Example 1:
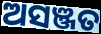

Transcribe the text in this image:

ଅସଞ୍ଜତ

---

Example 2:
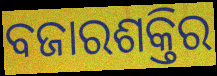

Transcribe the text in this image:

ବଜାରଶକ୍ତିର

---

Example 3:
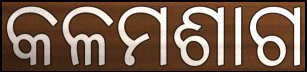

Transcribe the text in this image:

କଳମଶାଗ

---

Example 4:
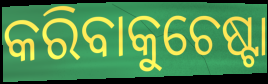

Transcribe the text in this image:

କରିବାକୁଚେଷ୍ଟା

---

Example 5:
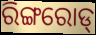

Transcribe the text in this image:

ରିଙ୍ଗରୋଡ୍